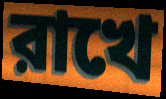
রাখে